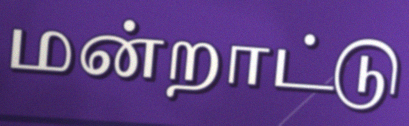
மன்றாட்டு